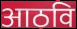
आठवि